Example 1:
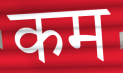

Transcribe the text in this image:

कम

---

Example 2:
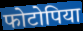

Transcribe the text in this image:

फोटोपिया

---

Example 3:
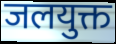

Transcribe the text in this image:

जलयुक्त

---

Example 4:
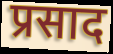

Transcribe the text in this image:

प्रसाद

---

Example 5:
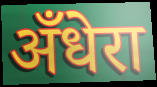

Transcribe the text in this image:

अँधेरा